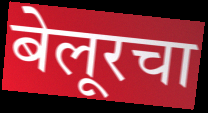
बेलूरचा